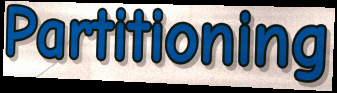
Partitioning